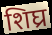
शिघ्र